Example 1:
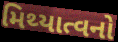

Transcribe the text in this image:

મિથ્યાત્વનો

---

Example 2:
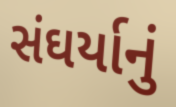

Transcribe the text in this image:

સંઘર્યાનું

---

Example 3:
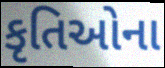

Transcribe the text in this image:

કૃતિઓના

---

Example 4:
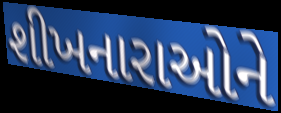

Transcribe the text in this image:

શીખનારાઓને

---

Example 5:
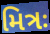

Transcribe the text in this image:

મિત્રઃ